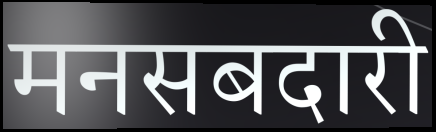
मनसबदारी